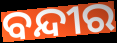
ବନ୍ଦୀର